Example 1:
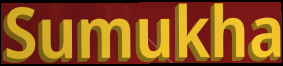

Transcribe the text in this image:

Sumukha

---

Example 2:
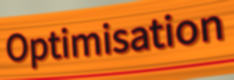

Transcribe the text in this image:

Optimisation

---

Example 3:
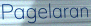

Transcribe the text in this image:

Pagelaran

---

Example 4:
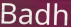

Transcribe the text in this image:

Badh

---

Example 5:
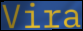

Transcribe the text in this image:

Vira